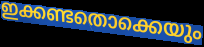
ഇക്കണ്ടതൊക്കെയും